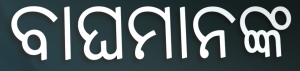
ବାଘମାନଙ୍କ